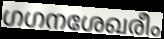
ഗഗനശേഖരീം